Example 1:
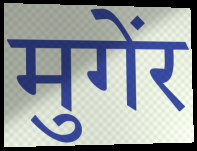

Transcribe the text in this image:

मुगेंर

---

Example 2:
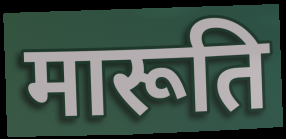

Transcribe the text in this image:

मारूति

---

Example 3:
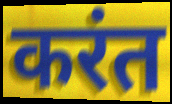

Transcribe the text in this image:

करंत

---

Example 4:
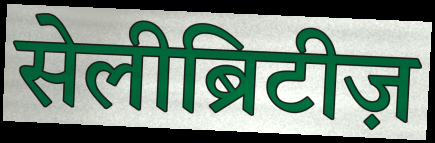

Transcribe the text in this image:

सेलीब्रिटीज़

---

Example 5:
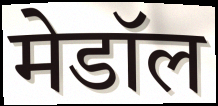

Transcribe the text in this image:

मेडॉल